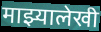
माझ्यालेखी